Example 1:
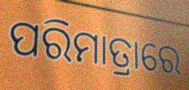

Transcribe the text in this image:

ପରିମାତ୍ରାରେ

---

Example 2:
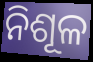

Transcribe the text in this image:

ନିଶୂଳ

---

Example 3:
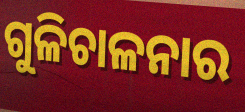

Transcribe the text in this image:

ଗୁଳିଚାଳନାର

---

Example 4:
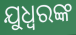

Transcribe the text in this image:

ଯୁଧ୍ୱରଙ୍କ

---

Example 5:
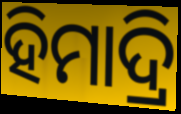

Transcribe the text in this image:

ହିମାଦ୍ରି